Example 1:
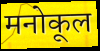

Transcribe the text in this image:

मनोकूल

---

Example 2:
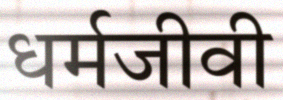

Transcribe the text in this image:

धर्मजीवी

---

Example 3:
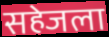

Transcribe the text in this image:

सहेजला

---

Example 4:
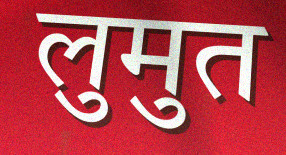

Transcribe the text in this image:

लुमुत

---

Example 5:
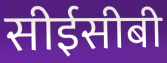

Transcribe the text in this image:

सीईसीबी